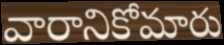
వారానికోమారు